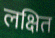
लक्षित